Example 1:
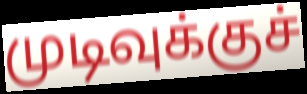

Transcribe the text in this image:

முடிவுக்குச்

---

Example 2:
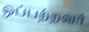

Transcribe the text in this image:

ஒப்பற்றவர்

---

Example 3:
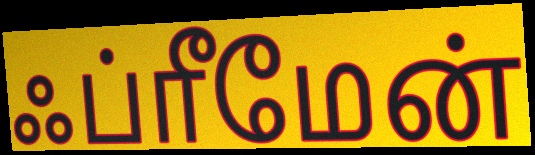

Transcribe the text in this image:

ஃப்ரீமேன்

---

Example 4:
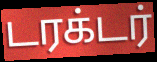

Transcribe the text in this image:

டரக்டர்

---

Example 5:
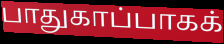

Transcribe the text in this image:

பாதுகாப்பாகக்